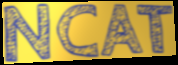
NCAT